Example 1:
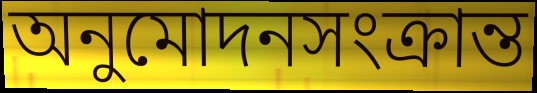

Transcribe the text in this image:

অনুমোদনসংক্রান্ত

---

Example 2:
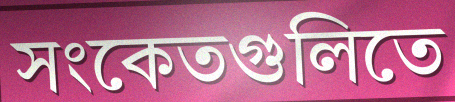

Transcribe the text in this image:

সংকেতগুলিতে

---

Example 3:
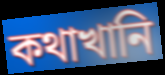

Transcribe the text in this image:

কথাখানি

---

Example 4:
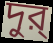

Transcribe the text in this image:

দুর্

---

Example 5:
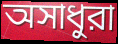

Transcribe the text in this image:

অসাধুরা